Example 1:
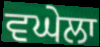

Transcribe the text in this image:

ਵਘੇਲਾ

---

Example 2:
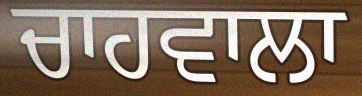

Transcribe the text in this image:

ਚਾਹਵਾਲਾ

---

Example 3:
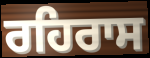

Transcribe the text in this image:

ਰਹਿਰਾਸ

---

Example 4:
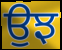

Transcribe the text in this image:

ਉਝ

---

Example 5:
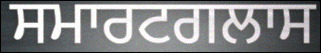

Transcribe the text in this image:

ਸਮਾਰਟਗਲਾਸ